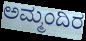
ಅಮ್ಮಂದಿರ